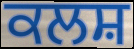
ਕਲਸ਼